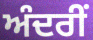
ਅੰਦਰੀਂ